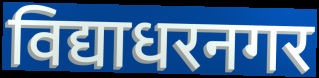
विद्याधरनगर